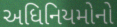
અધિનિયમોનો